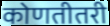
कोणतीतरी